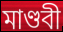
মাণ্ডবী